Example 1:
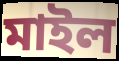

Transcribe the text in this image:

মাইল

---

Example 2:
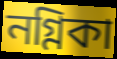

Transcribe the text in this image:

নগ্নিকা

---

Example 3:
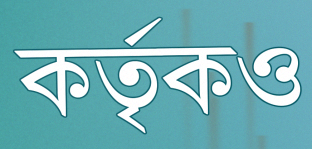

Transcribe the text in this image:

কর্তৃকও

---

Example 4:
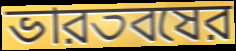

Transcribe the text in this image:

ভারতবষের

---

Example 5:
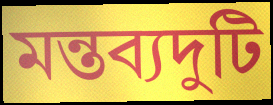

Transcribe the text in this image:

মন্তব্যদুটি